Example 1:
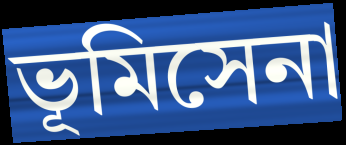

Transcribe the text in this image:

ভূমিসেনা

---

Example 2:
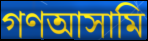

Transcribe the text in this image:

গণআসামি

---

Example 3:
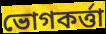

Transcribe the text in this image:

ভোগকর্ত্তা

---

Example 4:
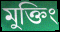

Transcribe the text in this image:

মুক্তিং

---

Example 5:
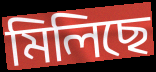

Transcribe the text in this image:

মিলিছে